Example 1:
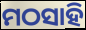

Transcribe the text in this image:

ମଠସାହି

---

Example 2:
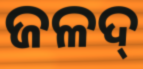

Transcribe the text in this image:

ଜଳଦ୍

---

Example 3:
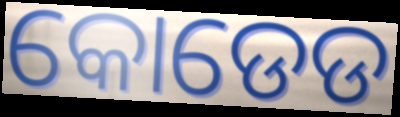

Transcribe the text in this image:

କୋଡେଡ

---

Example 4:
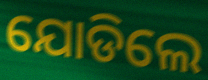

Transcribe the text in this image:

ଯୋଡିଲେ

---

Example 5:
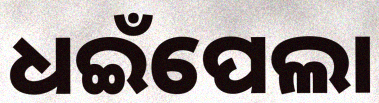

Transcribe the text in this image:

ଧଇଁପେଲା